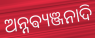
ଅନ୍ନଵ୍ୟଞ୍ଜନାଦି